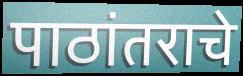
पाठांतराचे